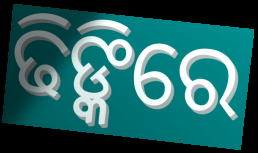
ଢିଙ୍କିରେ